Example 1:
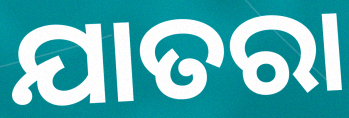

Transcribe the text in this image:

ଯାତରା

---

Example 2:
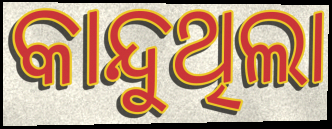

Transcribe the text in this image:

କାନ୍ଦୁଥିଲା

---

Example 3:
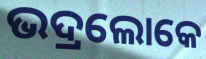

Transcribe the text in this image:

ଭଦ୍ରଲୋକେ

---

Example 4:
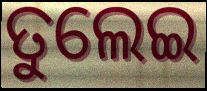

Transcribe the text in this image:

ତୁଲେଇ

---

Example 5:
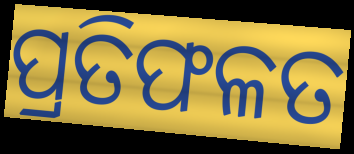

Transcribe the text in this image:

ପ୍ରତିଫଳତ